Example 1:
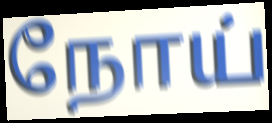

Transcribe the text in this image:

நோய்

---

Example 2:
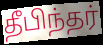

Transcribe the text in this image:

தீபிந்தர்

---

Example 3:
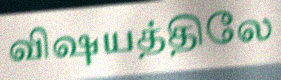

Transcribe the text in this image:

விஷயத்திலே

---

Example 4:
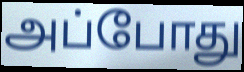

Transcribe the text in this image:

அப்போது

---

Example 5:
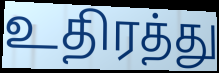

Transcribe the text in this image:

உதிரத்து